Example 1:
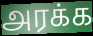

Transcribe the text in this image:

அரக்க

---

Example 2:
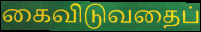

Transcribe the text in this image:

கைவிடுவதைப்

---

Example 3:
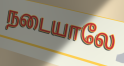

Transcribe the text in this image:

நடையாலே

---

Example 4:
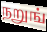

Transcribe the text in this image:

நறுங்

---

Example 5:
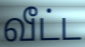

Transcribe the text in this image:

வீட்ட